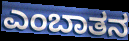
ಎಂಬಾತನ